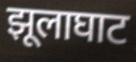
झूलाघाट